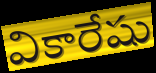
వికారేషు